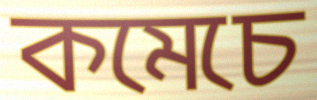
কমেচে